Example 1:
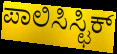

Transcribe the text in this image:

ಪಾಲಿಸಿಸ್ಟಿಕ್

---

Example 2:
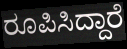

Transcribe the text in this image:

ರೂಪಿಸಿದ್ದಾರೆ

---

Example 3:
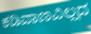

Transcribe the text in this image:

ಕಡಿವಾಣವಿಲ್ಲದ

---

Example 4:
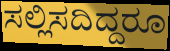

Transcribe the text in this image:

ಸಲ್ಲಿಸದಿದ್ದರೂ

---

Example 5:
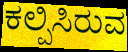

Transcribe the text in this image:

ಕಲ್ಪಿಸಿರುವ